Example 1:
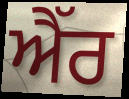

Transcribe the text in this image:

ਐੱਰ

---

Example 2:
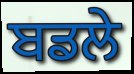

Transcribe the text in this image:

ਬਡਲੇ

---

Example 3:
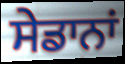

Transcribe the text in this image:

ਸੇਡਾਨਾਂ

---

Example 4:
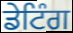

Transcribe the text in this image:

ਡੇਟਿੰਗ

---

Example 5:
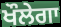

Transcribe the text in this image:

ਖੌਲੇਗਾ